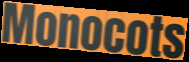
Monocots